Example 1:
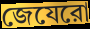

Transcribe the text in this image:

জেযেরো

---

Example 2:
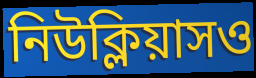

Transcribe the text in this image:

নিউক্লিয়াসও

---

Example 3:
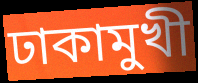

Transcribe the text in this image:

ঢাকামুখী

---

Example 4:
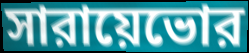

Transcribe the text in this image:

সারায়েভোর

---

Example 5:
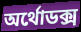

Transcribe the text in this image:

অর্থোডক্স